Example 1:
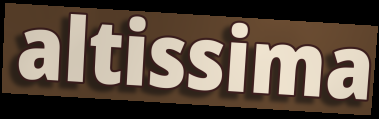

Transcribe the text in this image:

altissima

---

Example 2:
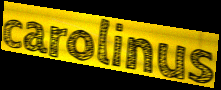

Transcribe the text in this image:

carolinus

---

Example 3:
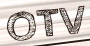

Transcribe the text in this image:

OTV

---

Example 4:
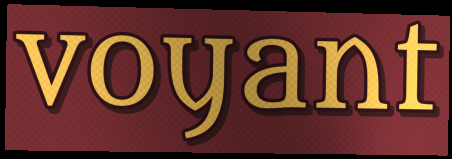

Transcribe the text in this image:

voyant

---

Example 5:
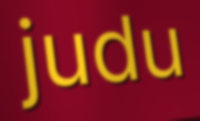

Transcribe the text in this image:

judu